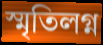
স্মৃতিলগ্ন